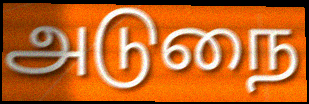
அடுநை